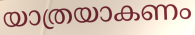
യാത്രയാകണം